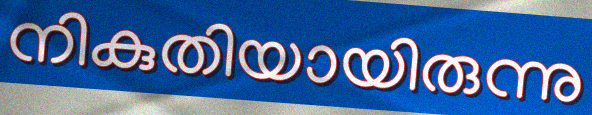
നികുതിയായിരുന്നു